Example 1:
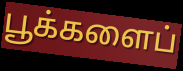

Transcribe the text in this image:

பூக்களைப்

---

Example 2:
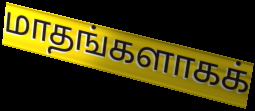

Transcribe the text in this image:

மாதங்களாகக்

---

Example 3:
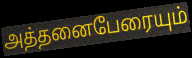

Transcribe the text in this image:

அத்தனைபேரையும்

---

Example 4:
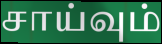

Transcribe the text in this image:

சாய்வும்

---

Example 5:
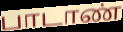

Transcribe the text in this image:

பாடாண்